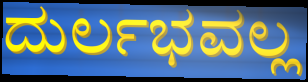
ದುರ್ಲಭವಲ್ಲ